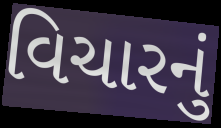
વિચારનું